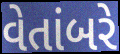
વેતાંબરે